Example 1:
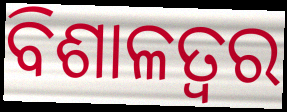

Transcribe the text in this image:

ବିଶାଳତ୍ୱର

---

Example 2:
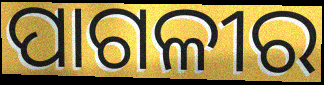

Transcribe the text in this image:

ପାଗଳୀର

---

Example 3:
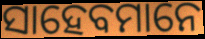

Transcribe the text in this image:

ସାହେବମାନେ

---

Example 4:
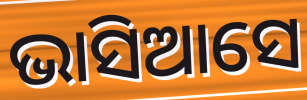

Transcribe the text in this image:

ଭାସିଆସେ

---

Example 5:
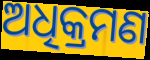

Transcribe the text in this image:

ଅଧିକ୍ରମଣ